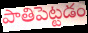
పాతిపెట్టడం